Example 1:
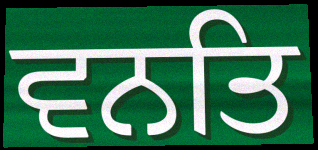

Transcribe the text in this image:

ਵਨਤਿ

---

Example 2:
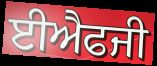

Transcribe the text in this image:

ਈਐਫਜੀ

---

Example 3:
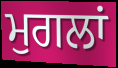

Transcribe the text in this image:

ਮੁਗਲਾਂ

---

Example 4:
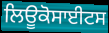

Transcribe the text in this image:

ਲਿਊਕੋਸਾਈਟਸ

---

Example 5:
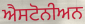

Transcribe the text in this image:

ਐਸਟੋਨੀਅਨ